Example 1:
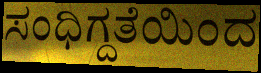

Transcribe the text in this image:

ಸಂಧಿಗ್ದತೆಯಿಂದ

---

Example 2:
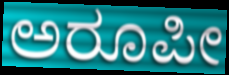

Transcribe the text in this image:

ಅರೂಪೀ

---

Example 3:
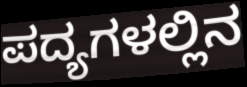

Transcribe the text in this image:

ಪದ್ಯಗಳಲ್ಲಿನ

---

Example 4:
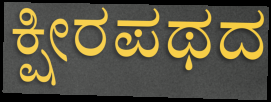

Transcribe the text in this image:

ಕ್ಷೀರಪಥದ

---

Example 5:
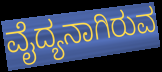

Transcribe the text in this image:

ವೈದ್ಯನಾಗಿರುವ